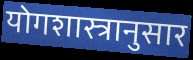
योगशास्त्रानुसार